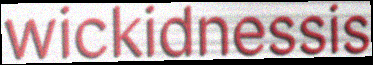
wickidnessis